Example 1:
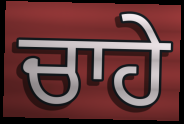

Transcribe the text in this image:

ਚਾਹੇ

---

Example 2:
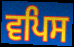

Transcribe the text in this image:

ਵਪਿਸ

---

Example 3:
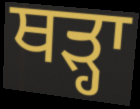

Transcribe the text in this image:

ਥੜ੍ਹਾ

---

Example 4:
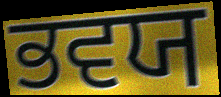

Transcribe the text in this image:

ਭਵਯ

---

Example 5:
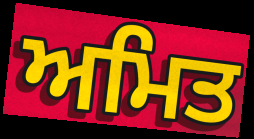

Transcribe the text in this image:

ਅਮਿਤ